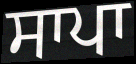
ਸਾਪਾ